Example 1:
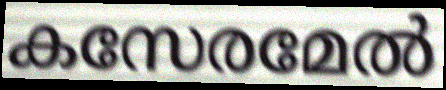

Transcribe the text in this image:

കസേരമേൽ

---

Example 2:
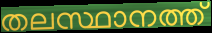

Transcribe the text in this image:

തലസ്ഥാനത്ത്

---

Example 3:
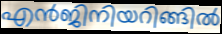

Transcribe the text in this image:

എൻജിനിയറിങ്ങിൽ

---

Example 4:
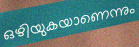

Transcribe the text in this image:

ഒഴിയുകയാണെന്നും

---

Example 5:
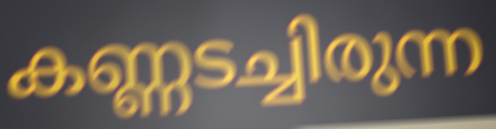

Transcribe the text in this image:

കണ്ണടച്ചിരുന്ന